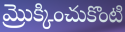
మ్రొక్కించుకొంటి